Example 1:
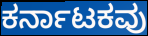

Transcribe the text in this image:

ಕರ್ನಾಟಕವು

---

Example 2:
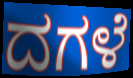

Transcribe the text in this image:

ದಗಳೆ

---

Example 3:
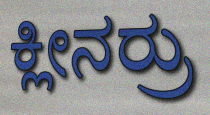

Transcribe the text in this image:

ಕ್ಲೀನರ್ರು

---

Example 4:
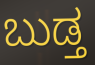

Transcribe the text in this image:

ಬುಡ್ತ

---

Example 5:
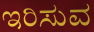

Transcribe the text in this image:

ಇರಿಸುವ